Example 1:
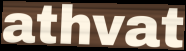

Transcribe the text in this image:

athvat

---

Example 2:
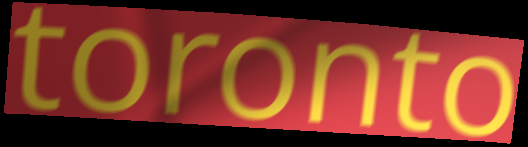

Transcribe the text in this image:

toronto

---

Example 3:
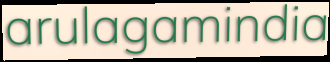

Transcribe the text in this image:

arulagamindia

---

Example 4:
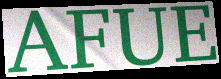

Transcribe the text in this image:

AFUE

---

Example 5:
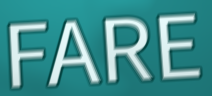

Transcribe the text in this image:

FARE